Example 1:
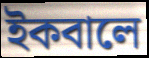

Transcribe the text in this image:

ইকবালে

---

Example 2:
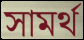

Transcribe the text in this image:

সামৰ্থ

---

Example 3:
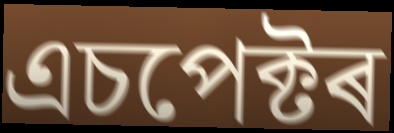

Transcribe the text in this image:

এচপেক্টৰ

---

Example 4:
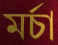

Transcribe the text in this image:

মৰ্চা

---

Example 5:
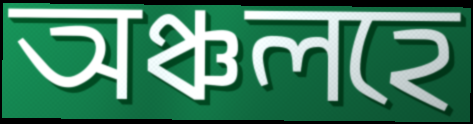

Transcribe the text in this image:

অঞ্চলহে